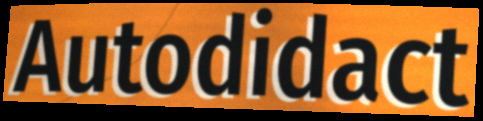
Autodidact